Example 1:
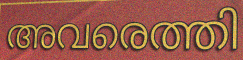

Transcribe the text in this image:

അവരെത്തി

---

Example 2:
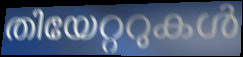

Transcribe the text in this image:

തിയേറ്ററുകൾ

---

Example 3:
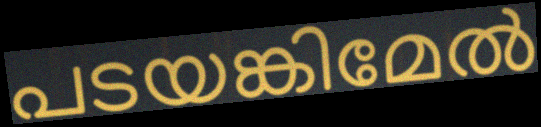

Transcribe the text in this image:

പടയങ്കിമേൽ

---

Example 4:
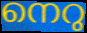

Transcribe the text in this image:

നെറു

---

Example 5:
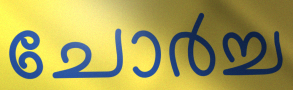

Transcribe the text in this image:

ചോർച്ച